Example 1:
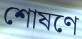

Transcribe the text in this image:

শোষণে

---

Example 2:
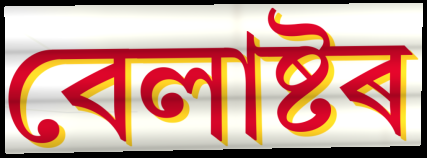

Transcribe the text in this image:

বেলাষ্টৰ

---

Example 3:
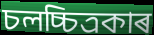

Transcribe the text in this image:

চলচ্চিত্ৰকাৰ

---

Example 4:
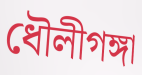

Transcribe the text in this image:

ধৌলীগঙ্গা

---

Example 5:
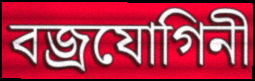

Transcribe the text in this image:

বজ্ৰযোগিনী